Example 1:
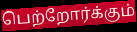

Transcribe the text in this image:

பெற்றோர்க்கும்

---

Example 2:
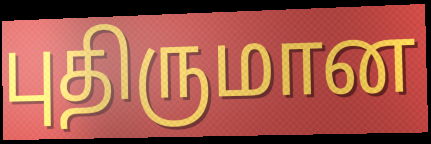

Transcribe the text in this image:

புதிருமான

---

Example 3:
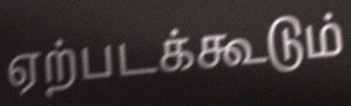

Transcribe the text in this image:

ஏற்படக்கூடும்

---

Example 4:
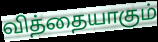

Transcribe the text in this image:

வித்தையாகும்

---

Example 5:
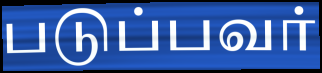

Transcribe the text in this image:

படுப்பவர்